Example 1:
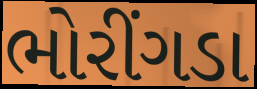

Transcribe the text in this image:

ભોરીંગડા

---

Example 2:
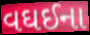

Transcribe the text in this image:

વઘઈના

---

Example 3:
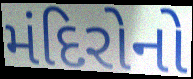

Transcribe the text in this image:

મંદિરોનો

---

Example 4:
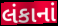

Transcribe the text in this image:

લંકાનાં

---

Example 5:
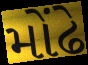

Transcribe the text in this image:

મોંઢે